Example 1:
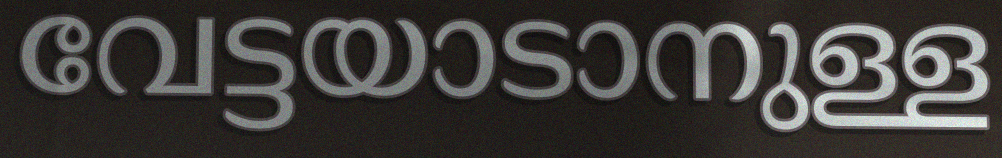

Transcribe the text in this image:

വേട്ടയാടാനുള്ള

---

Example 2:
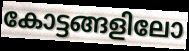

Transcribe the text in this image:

കോട്ടങ്ങളിലോ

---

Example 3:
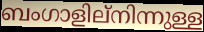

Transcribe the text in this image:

ബംഗാളില്നിന്നുള്ള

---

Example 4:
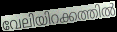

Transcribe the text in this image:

വേലിയിറക്കത്തിൽ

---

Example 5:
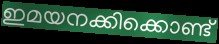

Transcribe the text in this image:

ഇമയനക്കിക്കൊണ്ട്